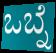
ಒಬ್ನೆ